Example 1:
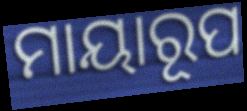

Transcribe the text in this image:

ମାୟାରୂପ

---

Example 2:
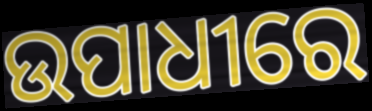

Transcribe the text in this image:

ଉପାଧୀରେ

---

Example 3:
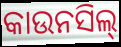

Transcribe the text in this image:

କାଉନସିଲ୍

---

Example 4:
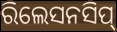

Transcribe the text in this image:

ରିଲେସନସିପ୍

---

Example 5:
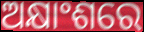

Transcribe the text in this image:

ଅକ୍ଷାଂଶରେ